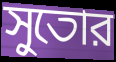
সুতোর